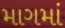
માગમાં